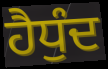
ਹੈਧੁੰਦ